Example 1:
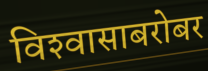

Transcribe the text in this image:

विश्वासाबरोबर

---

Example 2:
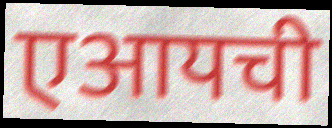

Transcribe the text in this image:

एआयची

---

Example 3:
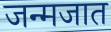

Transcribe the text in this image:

जन्मजात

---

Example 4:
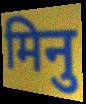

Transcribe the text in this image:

मिनु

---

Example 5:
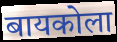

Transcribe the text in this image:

बायकोला